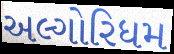
અલ્ગોરિધમ